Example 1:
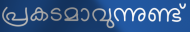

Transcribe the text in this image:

പ്രകടമാവുന്നുണ്ട്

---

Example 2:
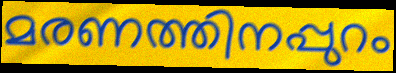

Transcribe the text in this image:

മരണത്തിനപ്പുറം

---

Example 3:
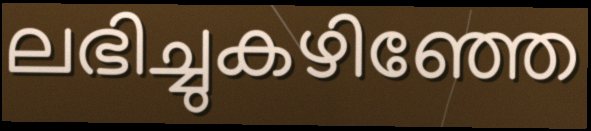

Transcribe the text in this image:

ലഭിച്ചുകഴിഞ്ഞേ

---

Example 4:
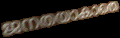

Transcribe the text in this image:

ജനതയാകാതെ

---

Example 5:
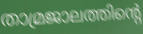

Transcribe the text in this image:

താമ്രജാലത്തിന്റെ